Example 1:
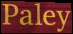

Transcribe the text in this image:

Paley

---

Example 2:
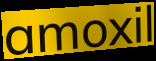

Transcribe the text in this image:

amoxil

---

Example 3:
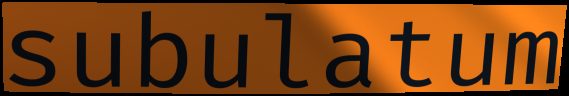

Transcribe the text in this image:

subulatum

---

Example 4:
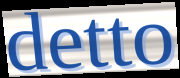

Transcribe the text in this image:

detto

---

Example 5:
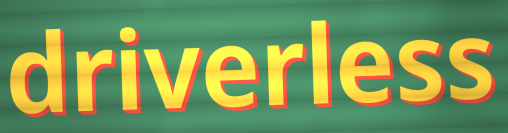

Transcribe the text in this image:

driverless